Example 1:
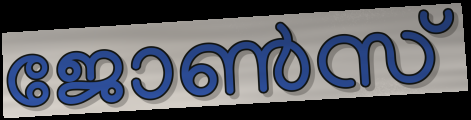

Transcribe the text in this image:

ജോൺസ്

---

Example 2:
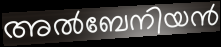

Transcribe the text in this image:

അൽബേനിയൻ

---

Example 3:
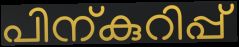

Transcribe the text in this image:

പിന്കുറിപ്പ്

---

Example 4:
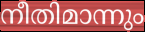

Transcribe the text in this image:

നീതിമാന്നും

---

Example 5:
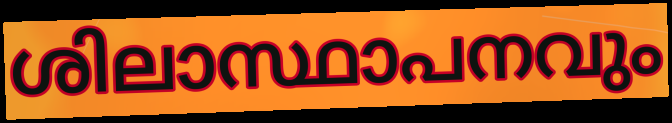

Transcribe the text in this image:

ശിലാസ്ഥാപനവും